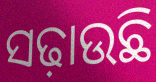
ସଢ଼ାଉଛି